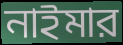
নাইমার